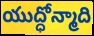
యుద్ధోన్మాది